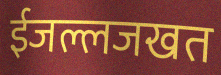
ईजल्लजखत